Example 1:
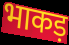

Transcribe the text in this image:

भाकड़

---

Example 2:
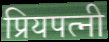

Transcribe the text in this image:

प्रियपत्नी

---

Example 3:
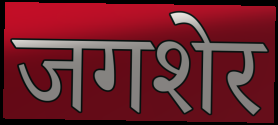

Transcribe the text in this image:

जगशेर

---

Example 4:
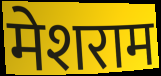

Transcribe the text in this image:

मेशराम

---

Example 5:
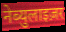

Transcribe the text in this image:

नेब्युलाइज़र